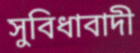
সুবিধাবাদী